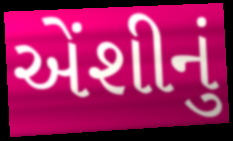
એંશીનું